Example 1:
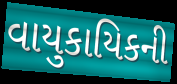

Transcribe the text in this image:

વાયુકાયિકની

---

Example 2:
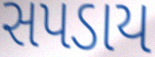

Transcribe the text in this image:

સપડાય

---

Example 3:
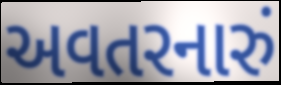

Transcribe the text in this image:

અવતરનારું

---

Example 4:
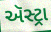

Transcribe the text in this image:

ઍસ્ટ્રા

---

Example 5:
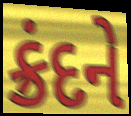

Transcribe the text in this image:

ક્રંદને